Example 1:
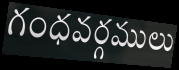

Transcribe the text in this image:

గంధవర్గములు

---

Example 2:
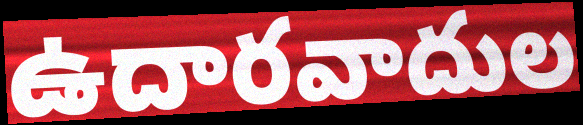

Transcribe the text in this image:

ఉదారవాదుల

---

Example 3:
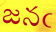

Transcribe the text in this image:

జనఁ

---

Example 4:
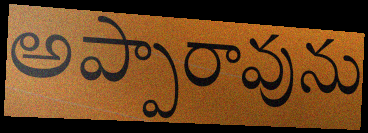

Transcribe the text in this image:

అప్పారావును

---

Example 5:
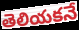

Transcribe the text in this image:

తెలియకనే